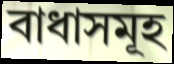
বাধাসমূহ